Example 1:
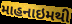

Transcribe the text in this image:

માહનાઇમથી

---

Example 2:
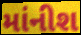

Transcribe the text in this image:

માંનીશ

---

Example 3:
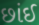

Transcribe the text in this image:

છાંઈ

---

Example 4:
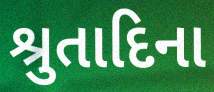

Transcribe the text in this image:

શ્રુતાદિના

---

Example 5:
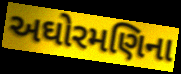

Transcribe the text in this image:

અઘોરમણિના